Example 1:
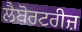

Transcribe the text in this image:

ਲੈਬੋਰਟਰੀਜ਼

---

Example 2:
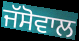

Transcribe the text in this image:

ਜੱਸੋਵਾਲ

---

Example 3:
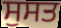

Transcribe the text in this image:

ਸੁਸਤ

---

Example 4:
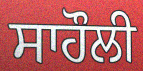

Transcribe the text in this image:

ਸਾਹੌਲੀ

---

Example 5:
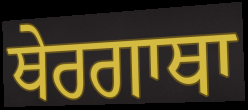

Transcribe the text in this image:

ਥੇਰਗਾਥਾ